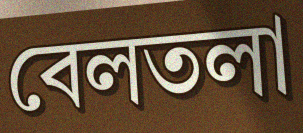
বেলতলা